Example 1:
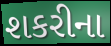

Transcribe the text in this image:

શકરીના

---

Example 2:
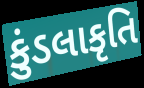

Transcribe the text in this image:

કુંડલાકૃતિ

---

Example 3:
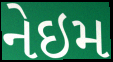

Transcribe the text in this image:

નેઇમ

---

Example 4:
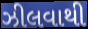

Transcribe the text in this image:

ઝીલવાથી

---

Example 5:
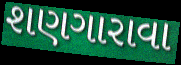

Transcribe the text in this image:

શણગારાવા